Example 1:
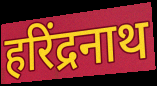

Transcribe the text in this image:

हरिंद्रनाथ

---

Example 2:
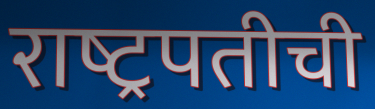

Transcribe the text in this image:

राष्ट्रपतीची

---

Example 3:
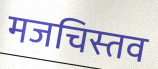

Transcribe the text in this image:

मजचिस्तव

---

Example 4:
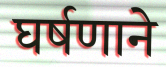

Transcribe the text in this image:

घर्षणाने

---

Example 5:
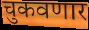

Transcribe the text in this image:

चुकवणार